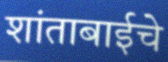
शांताबाईचे